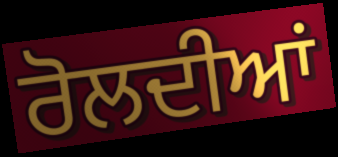
ਰੋਲਦੀਆਂ